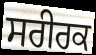
ਸਰੀਰਕ